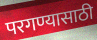
परगण्यासाठी